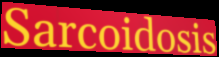
Sarcoidosis